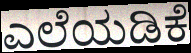
ಎಲೆಯಡಿಕೆ